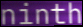
ninth